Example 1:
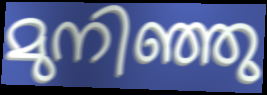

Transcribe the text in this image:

മുനിഞ്ഞു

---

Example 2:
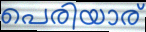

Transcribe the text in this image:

പെരിയാര്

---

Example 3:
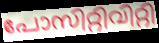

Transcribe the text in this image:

പോസിറ്റിവിറ്റി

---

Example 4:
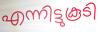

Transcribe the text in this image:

എന്നിട്ടുകൂടി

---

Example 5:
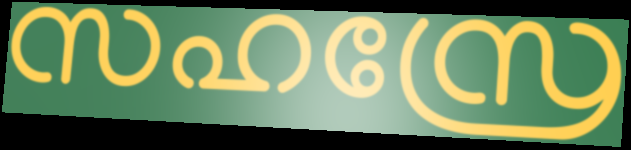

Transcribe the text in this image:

സഹസ്രേ